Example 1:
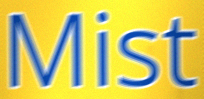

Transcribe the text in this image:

Mist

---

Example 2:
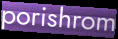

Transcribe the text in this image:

porishrom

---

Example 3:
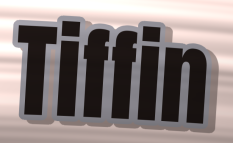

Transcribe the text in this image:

Tiffin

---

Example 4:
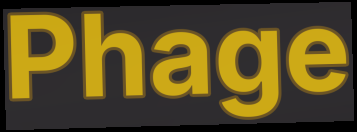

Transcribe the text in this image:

Phage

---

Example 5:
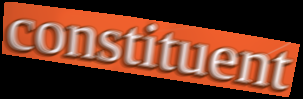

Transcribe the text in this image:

constituent